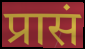
प्रासं